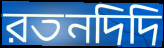
রতনদিদি